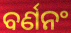
ବର୍ଣନଂ